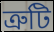
ত্ৰুটি